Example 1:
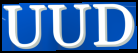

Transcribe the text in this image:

UUD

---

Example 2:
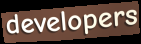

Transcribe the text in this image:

developers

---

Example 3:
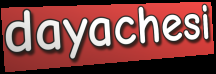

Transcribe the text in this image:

dayachesi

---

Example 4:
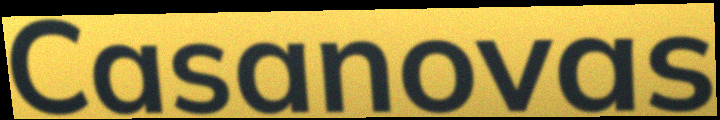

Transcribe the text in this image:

Casanovas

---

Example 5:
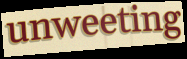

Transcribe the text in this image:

unweeting